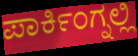
ಪಾರ್ಕಿಂಗ್ನಲ್ಲಿ